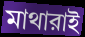
মাথারাই